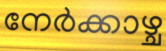
നേർക്കാഴ്ച